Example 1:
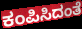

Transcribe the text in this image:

ಕಂಪಿಸಿದಂತೆ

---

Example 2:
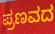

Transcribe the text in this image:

ಪ್ರಣವದ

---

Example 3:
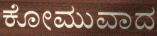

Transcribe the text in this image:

ಕೋಮುವಾದ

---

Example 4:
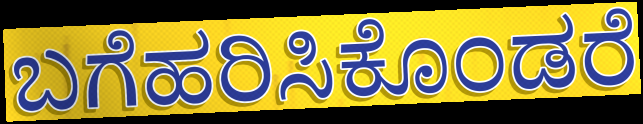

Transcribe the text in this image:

ಬಗೆಹರಿಸಿಕೊಂಡರೆ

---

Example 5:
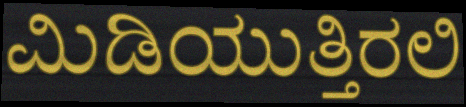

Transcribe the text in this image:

ಮಿಡಿಯುತ್ತಿರಲಿ